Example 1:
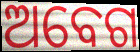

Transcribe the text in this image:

ଅବେଗ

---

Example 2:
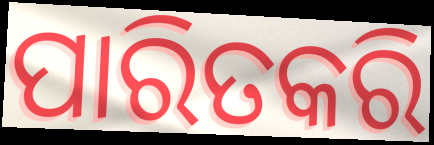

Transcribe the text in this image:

ପାରିତକରି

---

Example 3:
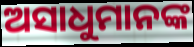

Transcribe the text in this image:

ଅସାଧୁମାନଙ୍କ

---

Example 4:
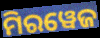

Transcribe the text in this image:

ମିରୱେଜ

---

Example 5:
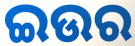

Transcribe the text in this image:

ଇଉର